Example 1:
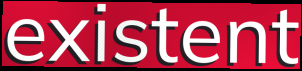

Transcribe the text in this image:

existent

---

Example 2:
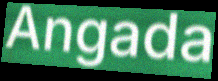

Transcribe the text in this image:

Angada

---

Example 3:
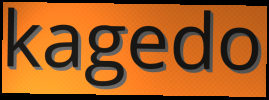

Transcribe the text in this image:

kagedo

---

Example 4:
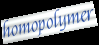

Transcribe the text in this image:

homopolymer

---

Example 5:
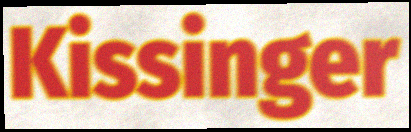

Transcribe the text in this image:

Kissinger